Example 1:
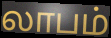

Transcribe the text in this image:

லாபம்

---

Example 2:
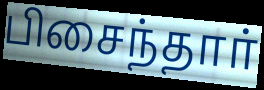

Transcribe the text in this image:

பிசைந்தார்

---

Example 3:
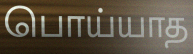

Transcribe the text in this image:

பொய்யாத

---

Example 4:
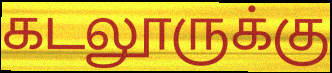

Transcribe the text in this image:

கடலூருக்கு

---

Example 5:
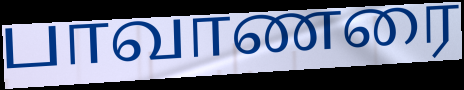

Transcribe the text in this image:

பாவாணரை